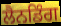
ਲੈਨਡਿੰਗ